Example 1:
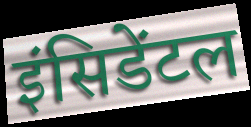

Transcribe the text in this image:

इंसिडेंटल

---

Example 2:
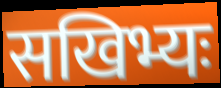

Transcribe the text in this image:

सखिभ्यः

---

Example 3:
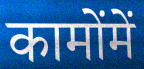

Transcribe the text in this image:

कामोंमें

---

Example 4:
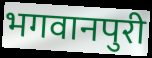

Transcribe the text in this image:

भगवानपुरी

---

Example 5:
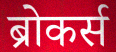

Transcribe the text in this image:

ब्रोकर्स